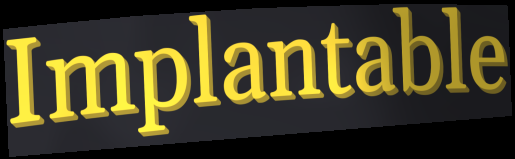
Implantable